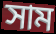
সাম